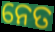
ନେତ